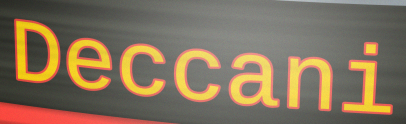
Deccani